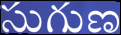
సుగుణ